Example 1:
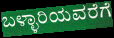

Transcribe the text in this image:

ಬಳ್ಳಾರಿಯವರೆಗೆ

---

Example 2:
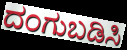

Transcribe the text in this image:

ದಂಗುಬಡಿಸಿ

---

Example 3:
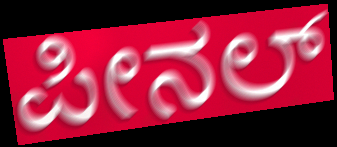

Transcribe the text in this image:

ಪೀನಲ್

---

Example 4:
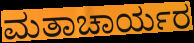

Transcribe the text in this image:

ಮತಾಚಾರ್ಯರ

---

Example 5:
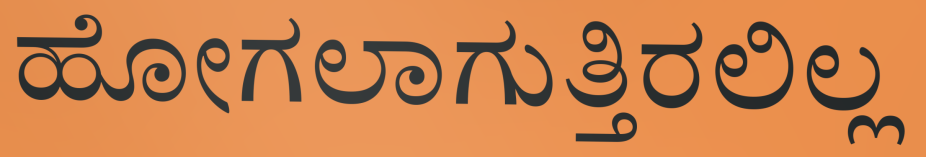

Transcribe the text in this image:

ಹೋಗಲಾಗುತ್ತಿರಲಿಲ್ಲ